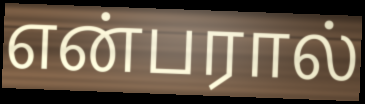
என்பரால்